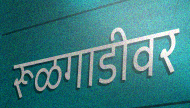
रूळगाडीवर